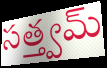
సత్త్వమ్